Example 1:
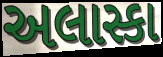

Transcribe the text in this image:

અલાસ્કા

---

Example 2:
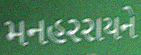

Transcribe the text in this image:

મનહરરાયને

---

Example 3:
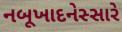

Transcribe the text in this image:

નબૂખાદનેસ્સારે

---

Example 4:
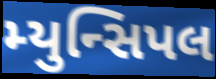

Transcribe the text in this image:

મ્યુન્સિપલ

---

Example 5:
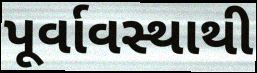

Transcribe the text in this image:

પૂર્વાવસ્થાથી